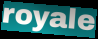
royale